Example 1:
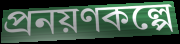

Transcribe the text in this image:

প্রনয়ণকল্পে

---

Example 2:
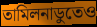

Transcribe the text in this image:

তামিলনাডুতেও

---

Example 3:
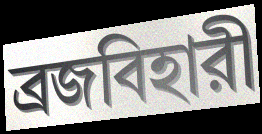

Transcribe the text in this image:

ব্রজবিহারী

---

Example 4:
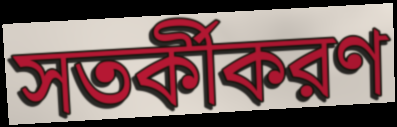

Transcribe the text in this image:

সতর্কীকরণ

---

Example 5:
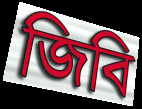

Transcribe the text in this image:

জিবি